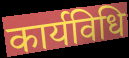
कार्यविधि